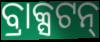
ବ୍ରାକ୍ସଟନ୍